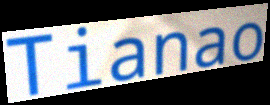
Tianao